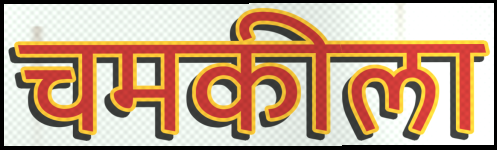
चमकीला